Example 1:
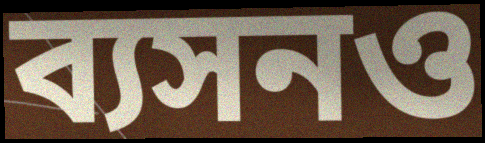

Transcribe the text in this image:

ব্যসনও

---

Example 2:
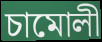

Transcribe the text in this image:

চামোলী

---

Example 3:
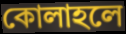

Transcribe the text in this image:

কোলাহলে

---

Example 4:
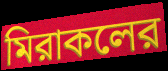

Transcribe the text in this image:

মিরাকলের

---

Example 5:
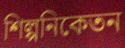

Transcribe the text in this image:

শিল্পনিকেতন